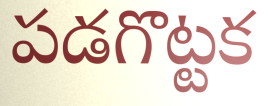
పడగొట్టక